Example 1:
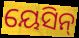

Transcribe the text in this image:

ୟେସିନ୍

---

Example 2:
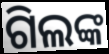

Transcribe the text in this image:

ଗିଲଙ୍କ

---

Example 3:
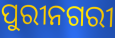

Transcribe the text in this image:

ପୁରୀନଗରୀ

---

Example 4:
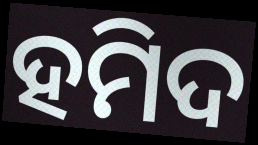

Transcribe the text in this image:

ହମିଦ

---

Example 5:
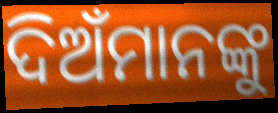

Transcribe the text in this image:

ଦିଅଁମାନଙ୍କୁ